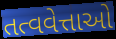
તત્વવેત્તાઓ